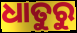
ଧାତୁରୁ